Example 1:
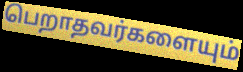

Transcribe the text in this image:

பெறாதவர்களையும்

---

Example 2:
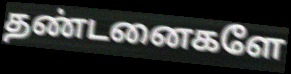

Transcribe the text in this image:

தண்டனைகளே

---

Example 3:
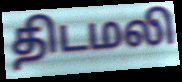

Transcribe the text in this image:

திடமலி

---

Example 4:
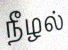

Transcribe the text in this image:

நீழல்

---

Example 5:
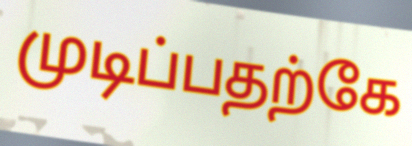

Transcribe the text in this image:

முடிப்பதற்கே